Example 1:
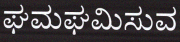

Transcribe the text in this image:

ಘಮಘಮಿಸುವ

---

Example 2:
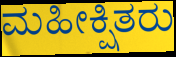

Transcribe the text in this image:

ಮಹೀಕ್ಷಿತರು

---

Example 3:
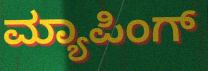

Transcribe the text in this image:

ಮ್ಯಾಪಿಂಗ್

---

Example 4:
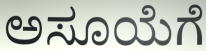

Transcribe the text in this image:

ಅಸೂಯೆಗೆ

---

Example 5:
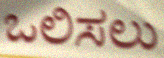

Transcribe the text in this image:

ಒಲಿಸಲು